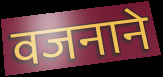
वजनाने